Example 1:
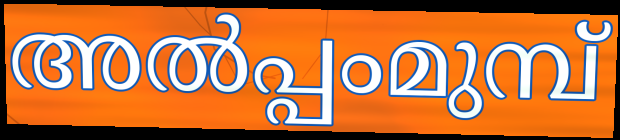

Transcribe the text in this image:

അൽപ്പംമുമ്പ്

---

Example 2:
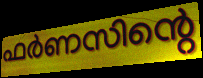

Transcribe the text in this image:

ഫർണസിന്റെ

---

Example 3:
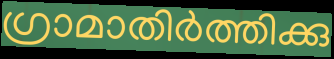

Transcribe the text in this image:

ഗ്രാമാതിർത്തിക്കു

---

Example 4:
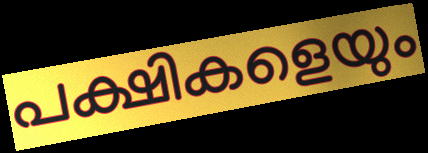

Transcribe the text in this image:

പക്ഷികളെയും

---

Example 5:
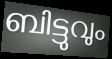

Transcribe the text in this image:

ബിട്ടുവും